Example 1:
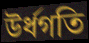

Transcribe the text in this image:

উর্ধগতি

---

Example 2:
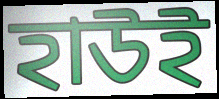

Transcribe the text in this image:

হাউই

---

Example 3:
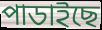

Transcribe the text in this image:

পাডাইছে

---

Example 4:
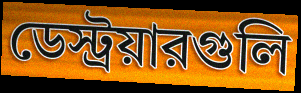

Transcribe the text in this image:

ডেস্ট্রয়ারগুলি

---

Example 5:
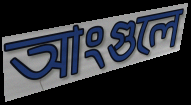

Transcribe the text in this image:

আংগুলে